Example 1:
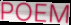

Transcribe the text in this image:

POEM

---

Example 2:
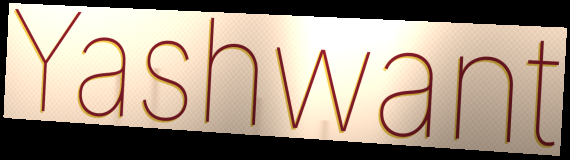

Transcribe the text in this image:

Yashwant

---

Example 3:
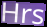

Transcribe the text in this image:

Hrs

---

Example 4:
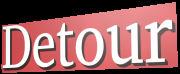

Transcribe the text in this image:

Detour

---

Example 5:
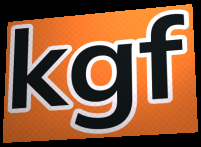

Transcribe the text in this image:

kgf